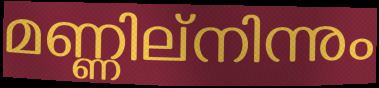
മണ്ണില്നിന്നും